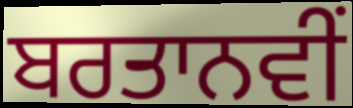
ਬਰਤਾਨਵੀਂ